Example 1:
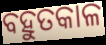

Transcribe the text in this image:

ବହୁତକାଳ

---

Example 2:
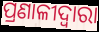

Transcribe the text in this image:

ପ୍ରଣାଳୀଦ୍ୱାରା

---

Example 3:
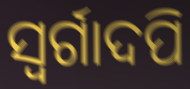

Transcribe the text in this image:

ସ୍ୱର୍ଗାଦପି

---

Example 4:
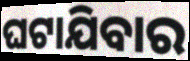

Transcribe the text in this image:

ଘଟାଯିବାର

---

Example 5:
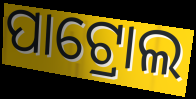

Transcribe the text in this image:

ପାଟ୍ରୋଲ